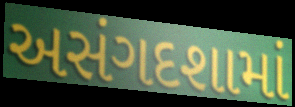
અસંગદશામાં